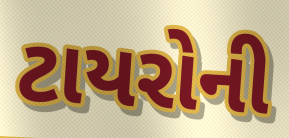
ટાયરોની